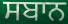
ਸਬਾਨ